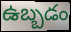
ఉబ్బడం